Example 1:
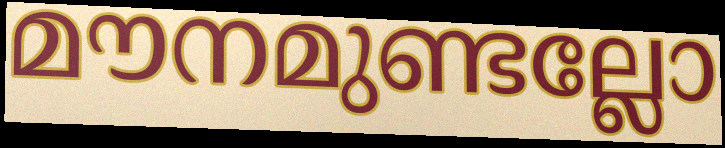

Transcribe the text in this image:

മൗനമുണ്ടല്ലോ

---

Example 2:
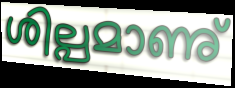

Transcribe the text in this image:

ശില്പമാണു്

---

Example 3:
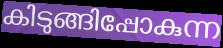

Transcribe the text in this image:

കിടുങ്ങിപ്പോകുന്ന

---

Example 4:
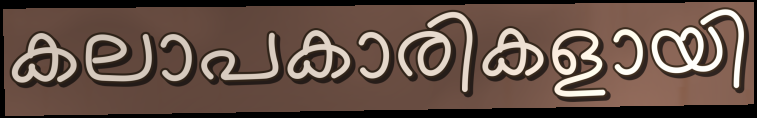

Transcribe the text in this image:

കലാപകാരികളായി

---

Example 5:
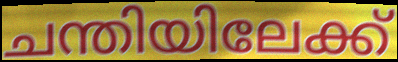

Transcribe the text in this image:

ചന്തിയിലേക്ക്